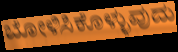
ಬೋಳಿಸಿಕೊಳ್ಳುವುದು